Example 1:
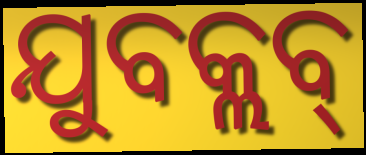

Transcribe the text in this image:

ଯୁବକ୍ଲବ୍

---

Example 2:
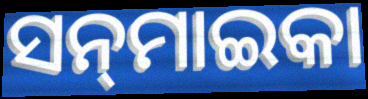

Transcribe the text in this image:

ସନ୍‌ମାଇକା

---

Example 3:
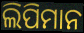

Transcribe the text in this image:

ଲିପିମାନ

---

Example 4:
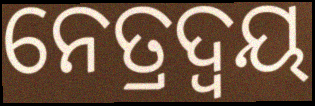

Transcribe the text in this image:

ନେତ୍ରଦ୍ୱୟ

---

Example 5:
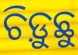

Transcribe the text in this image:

ଚିଡ଼ୁଛୁ